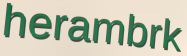
herambrk